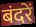
बंदरें